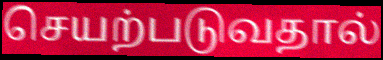
செயற்படுவதால்